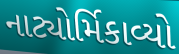
નાટ્યોર્મિકાવ્યો